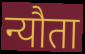
न्यौता